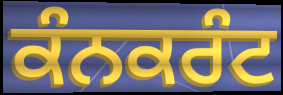
ਕੰਨਕਰੰਟ